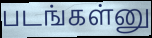
படங்கள்னு